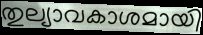
തുല്യാവകാശമായി